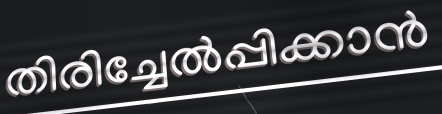
തിരിച്ചേൽപ്പിക്കാൻ